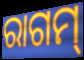
ରାଗମ୍